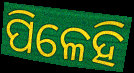
ପିଳେହି